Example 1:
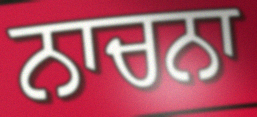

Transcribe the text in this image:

ਨਾਚਨਾ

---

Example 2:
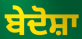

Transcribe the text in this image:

ਬੇਦੋਸ਼ਾ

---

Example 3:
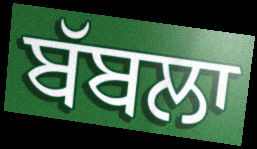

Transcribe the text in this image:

ਬੱਬਲਾ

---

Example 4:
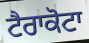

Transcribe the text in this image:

ਟੈਰਾਕੋਟਾ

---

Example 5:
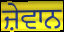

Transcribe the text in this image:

ਜ਼ੇਵਾਨ